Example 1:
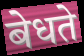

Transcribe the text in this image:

बेधते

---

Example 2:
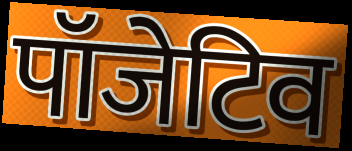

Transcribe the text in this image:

पॉजेटिव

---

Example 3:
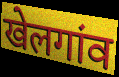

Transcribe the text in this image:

खेलगांव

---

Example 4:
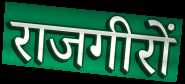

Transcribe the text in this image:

राजगीरों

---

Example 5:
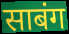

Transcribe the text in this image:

साबंग